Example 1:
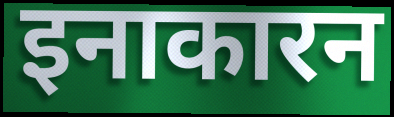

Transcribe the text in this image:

इनाकारन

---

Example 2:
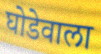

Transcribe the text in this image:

घोडेवाला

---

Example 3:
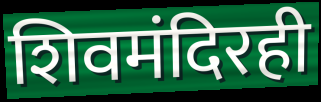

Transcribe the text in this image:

शिवमंदिरही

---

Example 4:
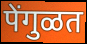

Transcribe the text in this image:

पेंगुळत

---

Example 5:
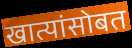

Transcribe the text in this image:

खात्यांसोबत